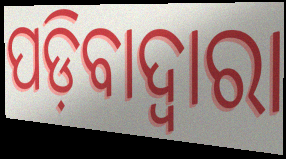
ପଡ଼ିବାଦ୍ୱାରା